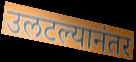
उलटल्यानंतर